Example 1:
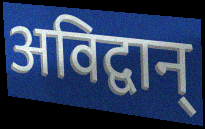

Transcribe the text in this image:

अविद्वान्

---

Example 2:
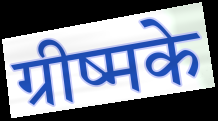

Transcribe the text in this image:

ग्रीष्मके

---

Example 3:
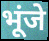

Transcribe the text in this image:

भूंजे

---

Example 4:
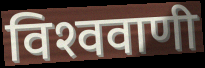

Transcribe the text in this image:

विश्ववाणी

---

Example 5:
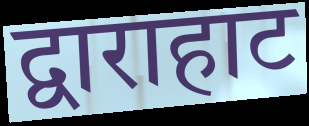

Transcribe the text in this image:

द्वाराहाट